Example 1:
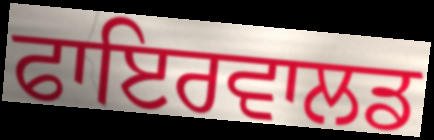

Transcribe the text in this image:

ਫਾਇਰਵਾਲਡ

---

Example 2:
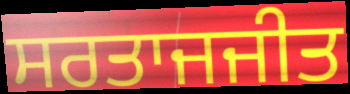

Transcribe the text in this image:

ਸਰਤਾਜਜੀਤ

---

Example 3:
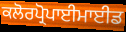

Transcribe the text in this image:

ਕਲੋਰਪ੍ਰੋਪਾਈਮਾਈਡ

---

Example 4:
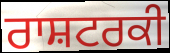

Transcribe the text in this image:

ਰਾਸ਼ਟਰਕੀ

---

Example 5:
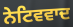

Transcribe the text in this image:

ਨੇਟਿਵਵਾਦ